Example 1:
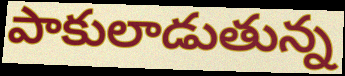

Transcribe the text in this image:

పాకులాడుతున్న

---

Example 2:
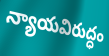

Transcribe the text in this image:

న్యాయవిరుద్ధం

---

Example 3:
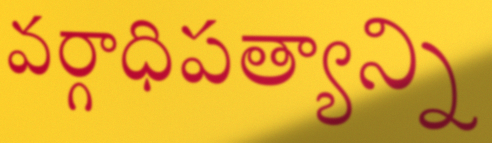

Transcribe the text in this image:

వర్గాధిపత్యాన్ని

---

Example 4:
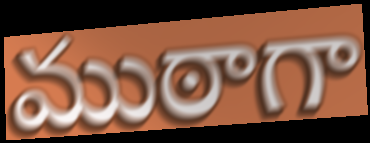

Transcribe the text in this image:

ముఠాగా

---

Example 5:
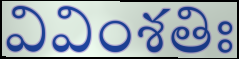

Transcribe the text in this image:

వివింశతిః